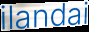
ilandai